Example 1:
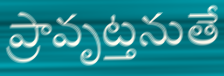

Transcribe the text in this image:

ప్రావృట్తనుతే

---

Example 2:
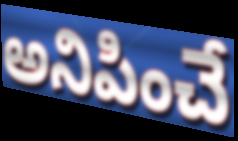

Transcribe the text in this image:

అనిపించే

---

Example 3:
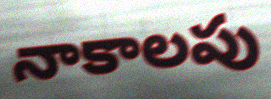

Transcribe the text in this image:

నాకాలపు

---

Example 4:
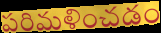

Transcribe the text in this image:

పరిమళించడం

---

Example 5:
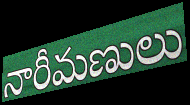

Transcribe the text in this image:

నారీమణులు